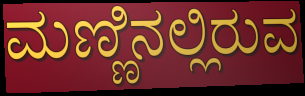
ಮಣ್ಣಿನಲ್ಲಿರುವ